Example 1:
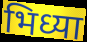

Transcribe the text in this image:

भिध्या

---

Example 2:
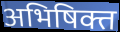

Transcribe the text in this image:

अभिषिक्त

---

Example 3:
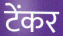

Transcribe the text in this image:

टेंकर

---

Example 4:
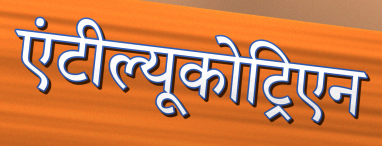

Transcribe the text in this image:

एंटील्यूकोट्रिएन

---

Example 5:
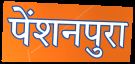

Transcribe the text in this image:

पेंशनपुरा